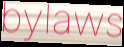
bylaws